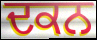
ਦਕਨ